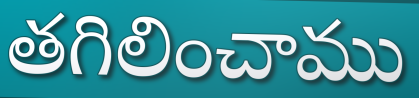
తగిలించాము